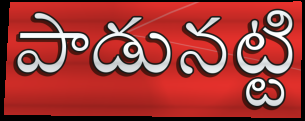
పాడునట్టి